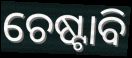
ଚେଷ୍ଟାବି